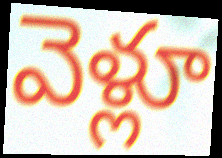
వెళ్లూ